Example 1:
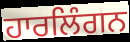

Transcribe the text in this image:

ਹਾਰਲਿੰਗਨ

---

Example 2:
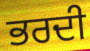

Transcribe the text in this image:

ਭਰਦੀ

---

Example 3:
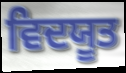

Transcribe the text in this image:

ਵਿਦਯੂਤ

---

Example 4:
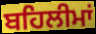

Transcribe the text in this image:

ਬਹਿਲੀਮਾਂ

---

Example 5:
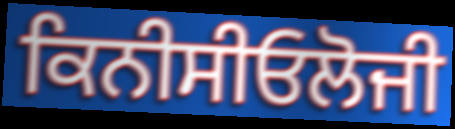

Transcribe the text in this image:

ਕਿਨੀਸੀਓਲੋਜੀ